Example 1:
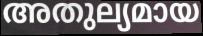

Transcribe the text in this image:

അതുല്യമായ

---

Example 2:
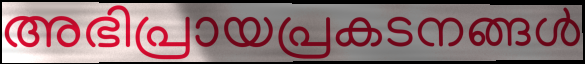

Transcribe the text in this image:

അഭിപ്രായപ്രകടനങ്ങൾ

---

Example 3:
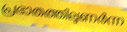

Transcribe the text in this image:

പ്രഭാതത്തിലുണർന്ന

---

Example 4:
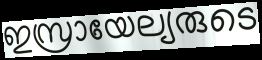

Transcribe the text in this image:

ഇസ്രായേല്യരുടെ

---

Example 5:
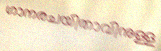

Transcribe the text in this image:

ഗാനരചയിതാവിനുള്ള